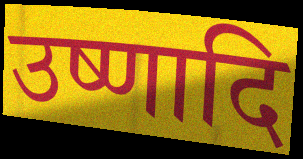
उष्णादि